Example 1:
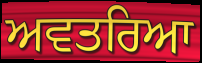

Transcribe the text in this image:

ਅਵਤਰਿਆ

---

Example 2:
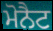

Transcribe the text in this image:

ਮੋਨੈਟ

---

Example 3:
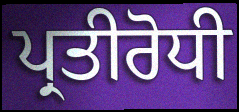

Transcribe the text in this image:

ਪ੍ਰਤੀਰੋਧੀ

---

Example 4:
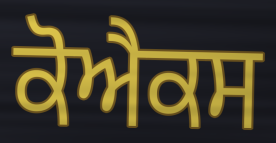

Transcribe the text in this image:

ਕੋਐਕਸ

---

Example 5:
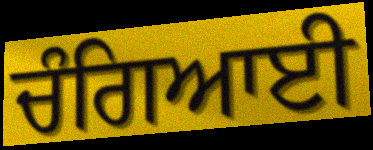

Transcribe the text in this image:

ਚੰਗਿਆਈ